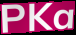
PKa